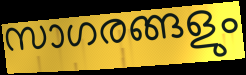
സാഗരങ്ങളും